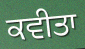
ਕਵੀਤਾ